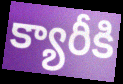
క్యారీకి